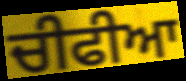
ਚੀਫੀਆ